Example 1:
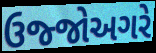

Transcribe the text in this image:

ઉજ્જોઅગરે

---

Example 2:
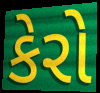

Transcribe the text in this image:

કેરો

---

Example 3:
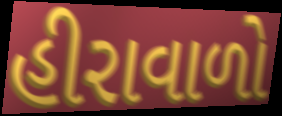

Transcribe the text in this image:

હીરાવાળો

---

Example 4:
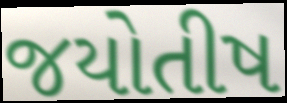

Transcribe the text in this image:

જયોતીષ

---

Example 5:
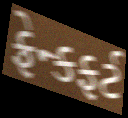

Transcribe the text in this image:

ફ્રેન્કફર્ટ